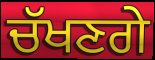
ਚੱਖਣਗੇ